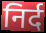
निर्द